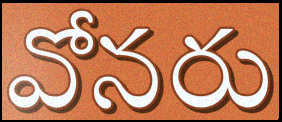
వోనరు